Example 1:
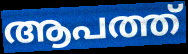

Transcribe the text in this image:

ആപത്ത്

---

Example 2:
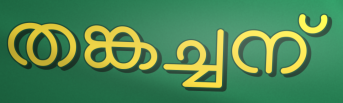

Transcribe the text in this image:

തങ്കച്ചന്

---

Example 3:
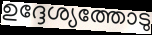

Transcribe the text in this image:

ഉദ്ദേശ്യത്തോടു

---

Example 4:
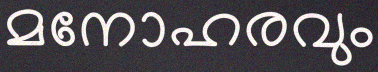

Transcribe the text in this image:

മനോഹരവും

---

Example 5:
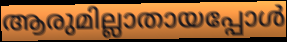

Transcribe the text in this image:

ആരുമില്ലാതായപ്പോൾ